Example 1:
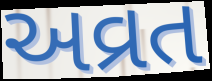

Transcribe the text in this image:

અવ્રત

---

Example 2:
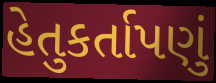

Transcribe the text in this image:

હેતુકર્તાપણું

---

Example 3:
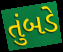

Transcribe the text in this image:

તુંબડે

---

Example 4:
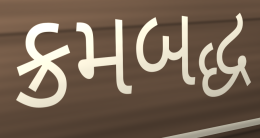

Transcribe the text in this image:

ક્રમબદ્ધ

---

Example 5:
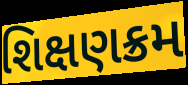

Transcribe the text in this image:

શિક્ષણક્રમ